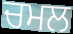
ਚਮਲ